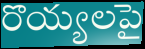
రొయ్యలపై